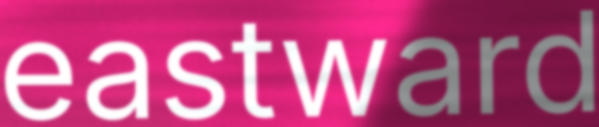
eastward